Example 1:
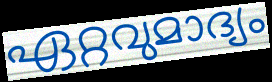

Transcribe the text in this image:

ഏറ്റവുമാദ്യം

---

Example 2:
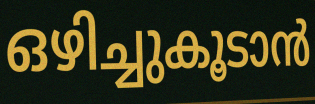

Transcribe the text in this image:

ഒഴിച്ചുകൂടാൻ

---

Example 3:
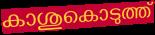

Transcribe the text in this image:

കാശുകൊടുത്ത്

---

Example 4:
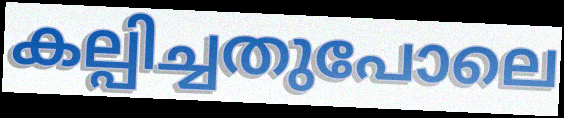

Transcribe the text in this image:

കല്പിച്ചതുപോലെ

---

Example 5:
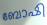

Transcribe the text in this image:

ബോഷി